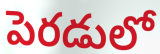
పెరడులో